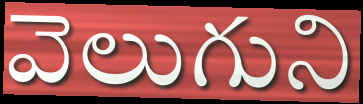
వెలుగుని